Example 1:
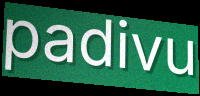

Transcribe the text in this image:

padivu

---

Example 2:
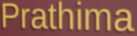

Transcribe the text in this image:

Prathima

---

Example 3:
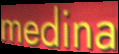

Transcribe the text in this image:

medina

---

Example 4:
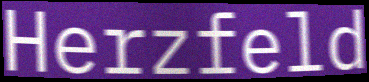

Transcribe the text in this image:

Herzfeld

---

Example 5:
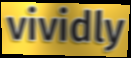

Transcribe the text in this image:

vividly